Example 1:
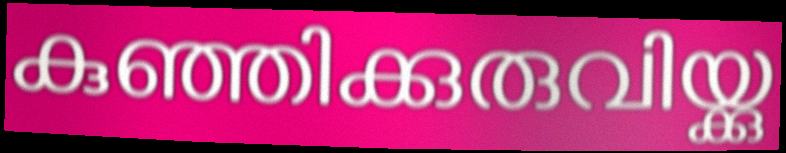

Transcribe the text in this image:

കുഞ്ഞിക്കുരുവിയ്ക്കു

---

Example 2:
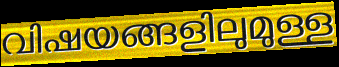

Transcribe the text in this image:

വിഷയങ്ങളിലുമുള്ള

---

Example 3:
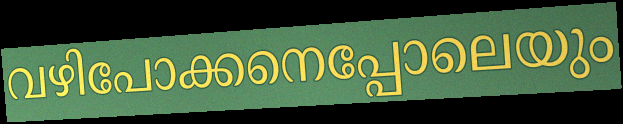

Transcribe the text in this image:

വഴിപോക്കനെപ്പോലെയും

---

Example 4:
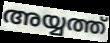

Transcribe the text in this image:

അയ്യത്ത്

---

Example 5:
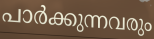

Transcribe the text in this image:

പാർക്കുന്നവരും